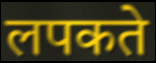
लपकते